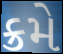
ક્રમે